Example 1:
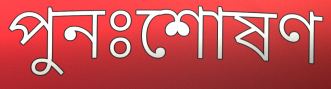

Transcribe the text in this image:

পুনঃশোষণ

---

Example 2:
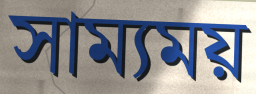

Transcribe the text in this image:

সাম্যময়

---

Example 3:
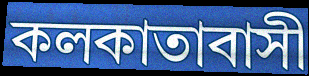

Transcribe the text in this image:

কলকাতাবাসী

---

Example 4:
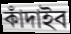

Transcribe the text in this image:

কাঁদাইব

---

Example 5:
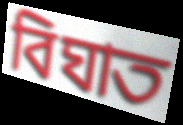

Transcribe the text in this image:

বিঘাত